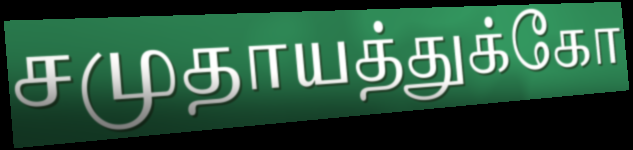
சமுதாயத்துக்கோ